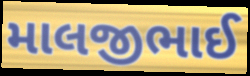
માલજીભાઈ